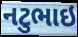
નટુભાઇ